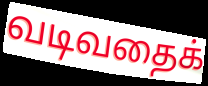
வடிவதைக்